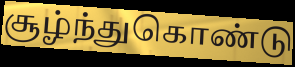
சூழ்ந்துகொண்டு